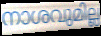
നാശവുമില്ല